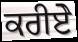
ਕਰੀਏੇ